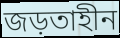
জড়তাহীন